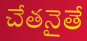
చేతనైతే